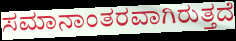
ಸಮಾನಾಂತರವಾಗಿರುತ್ತದೆ